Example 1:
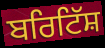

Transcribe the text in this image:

ਬਰਿਟਿੱਸ਼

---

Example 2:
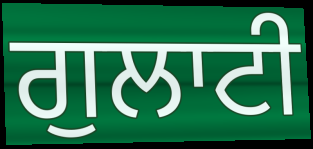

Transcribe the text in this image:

ਗੁਲਾਟੀ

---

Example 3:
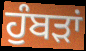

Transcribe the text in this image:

ਹੁੰਬੜਾਂ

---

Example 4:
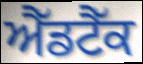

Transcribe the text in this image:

ਐੱਡਟੈੱਕ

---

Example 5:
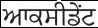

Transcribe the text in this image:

ਆਕਸੀਡੇਂਟ